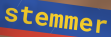
stemmer